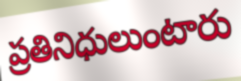
ప్రతినిధులుంటారు